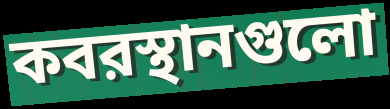
কবরস্থানগুলো